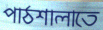
পাঠশালাতে